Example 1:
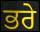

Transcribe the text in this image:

ਭਰੇ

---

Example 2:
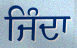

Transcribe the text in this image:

ਜਿੰਦਾ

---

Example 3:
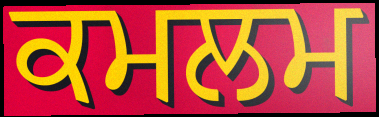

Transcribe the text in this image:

ਕਮਲਮ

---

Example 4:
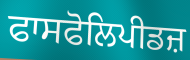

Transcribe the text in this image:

ਫਾਸਫੋਲਿਪੀਡਜ਼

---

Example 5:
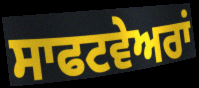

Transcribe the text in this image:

ਸਾਫਟਵੇਅਰਾਂ